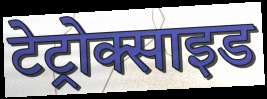
टेट्रोक्साइड